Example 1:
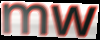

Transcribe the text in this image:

mw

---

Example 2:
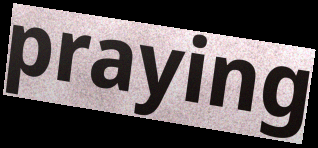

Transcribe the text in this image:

praying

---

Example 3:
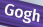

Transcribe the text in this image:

Gogh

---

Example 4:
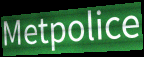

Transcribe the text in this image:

Metpolice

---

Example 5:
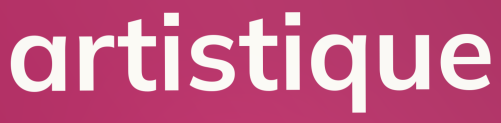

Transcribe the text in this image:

artistique